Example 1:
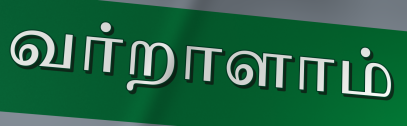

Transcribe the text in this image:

வர்றாளாம்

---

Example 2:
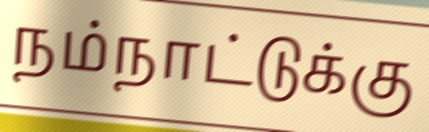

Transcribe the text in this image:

நம்நாட்டுக்கு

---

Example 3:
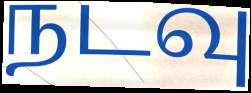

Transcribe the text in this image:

நடவு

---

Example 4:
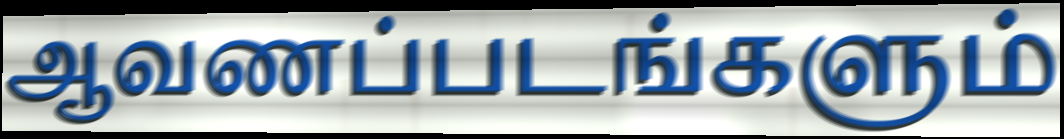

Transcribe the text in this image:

ஆவணப்படங்களும்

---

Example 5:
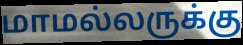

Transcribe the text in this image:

மாமல்லருக்கு